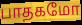
பாதகமோ